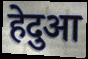
हेदुआ